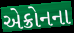
એક્રોનના